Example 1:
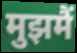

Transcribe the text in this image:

मुझमैं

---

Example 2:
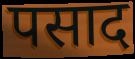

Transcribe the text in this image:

पसाद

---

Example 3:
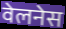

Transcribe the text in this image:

वेलनेस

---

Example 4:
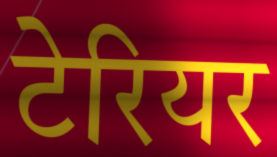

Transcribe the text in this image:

टेरियर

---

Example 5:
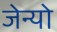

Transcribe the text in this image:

जेन्यो